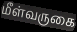
மீள்வருகை